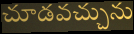
చూడవచ్చును